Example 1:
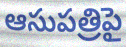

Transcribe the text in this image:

ఆసుపత్రిపై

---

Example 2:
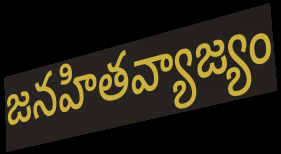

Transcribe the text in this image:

జనహితవ్యాజ్యం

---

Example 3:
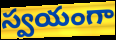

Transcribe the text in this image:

స్వయంగా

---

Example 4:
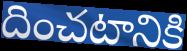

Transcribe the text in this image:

దించటానికి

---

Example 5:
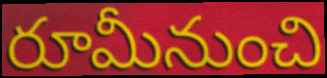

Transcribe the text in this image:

రూమీనుంచి